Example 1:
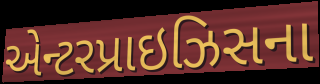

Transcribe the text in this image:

એન્ટરપ્રાઇઝિસના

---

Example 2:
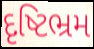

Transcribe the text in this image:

દૃષ્ટિભ્રમ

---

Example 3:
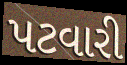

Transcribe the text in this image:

પટવારી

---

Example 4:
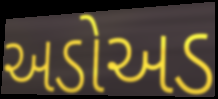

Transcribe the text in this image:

અડોઅડ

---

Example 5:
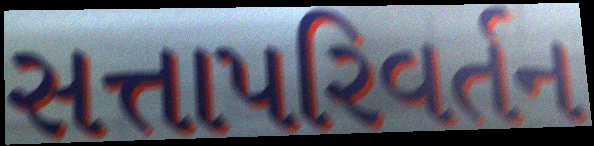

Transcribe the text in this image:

સત્તાપરિવર્તન